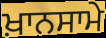
ਖ਼ਾਨਸਾਮੇ